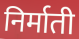
निर्माती